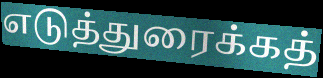
எடுத்துரைக்கத்